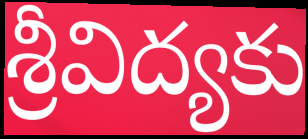
శ్రీవిద్యకు